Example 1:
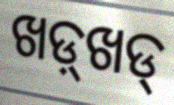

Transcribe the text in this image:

ଖଡ଼୍‌ଖଡ୍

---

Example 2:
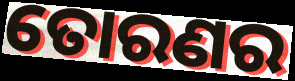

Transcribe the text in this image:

ତୋରଣର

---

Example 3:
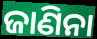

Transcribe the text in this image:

ଜାଣିନା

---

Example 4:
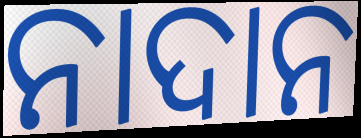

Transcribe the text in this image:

ନାଦାନ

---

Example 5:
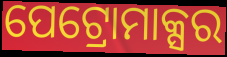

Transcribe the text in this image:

ପେଟ୍ରୋମାକ୍ସର